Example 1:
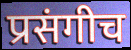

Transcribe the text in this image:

प्रसंगीच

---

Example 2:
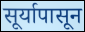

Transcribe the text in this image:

सूर्यापासून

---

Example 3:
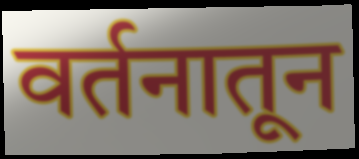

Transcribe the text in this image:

वर्तनातून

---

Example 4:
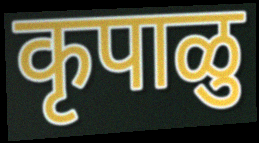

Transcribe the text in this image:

कृपाळु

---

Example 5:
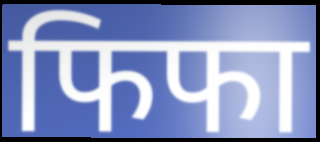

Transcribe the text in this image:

फिफा